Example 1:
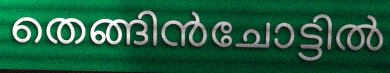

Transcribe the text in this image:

തെങ്ങിൻചോട്ടിൽ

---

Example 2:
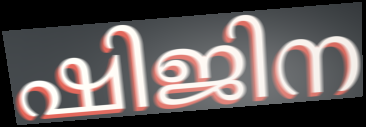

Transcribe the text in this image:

ഷിജിന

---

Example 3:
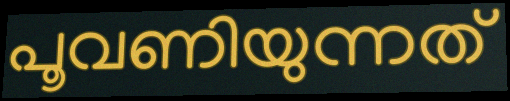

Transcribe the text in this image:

പൂവണിയുന്നത്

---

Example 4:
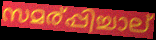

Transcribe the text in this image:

സമര്പ്പിച്ചാല്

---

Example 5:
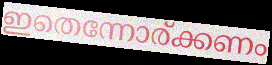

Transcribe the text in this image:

ഇതെന്നോര്ക്കണം